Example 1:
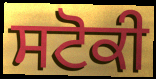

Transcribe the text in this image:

ਸਟੋਕੀ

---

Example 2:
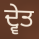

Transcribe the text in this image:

ਦ੍ਵੇਤ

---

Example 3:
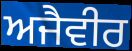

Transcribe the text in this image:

ਅਜੈਵੀਰ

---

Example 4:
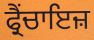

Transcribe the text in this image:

ਫ੍ਰੈਂਚਾਇਜ਼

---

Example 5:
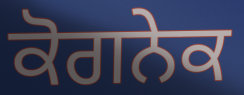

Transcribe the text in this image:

ਕੋਗਨੇਕ